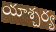
యాశ్చర్య